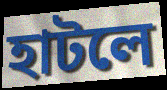
হাটলে